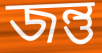
জন্তু